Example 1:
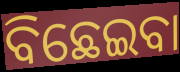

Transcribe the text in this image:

ବିଛେଇବା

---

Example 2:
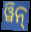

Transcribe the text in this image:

ୱିନ୍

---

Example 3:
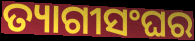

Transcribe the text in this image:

ତ୍ୟାଗୀସଂଘର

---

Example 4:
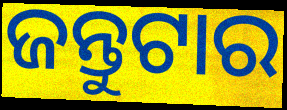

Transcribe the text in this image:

ଜନ୍ତୁଟାର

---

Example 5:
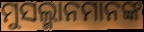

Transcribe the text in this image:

ମୁସଲ୍ମାନମାନଙ୍କ